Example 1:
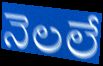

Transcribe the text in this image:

నెలలే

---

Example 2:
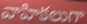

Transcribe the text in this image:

వాహికలుగా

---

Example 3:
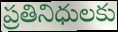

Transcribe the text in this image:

ప్రతినిధులకు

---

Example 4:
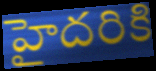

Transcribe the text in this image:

హైదరికి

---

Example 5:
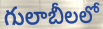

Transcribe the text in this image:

గులాబీలలో